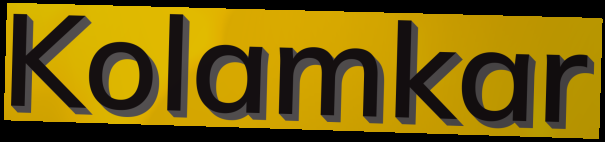
Kolamkar